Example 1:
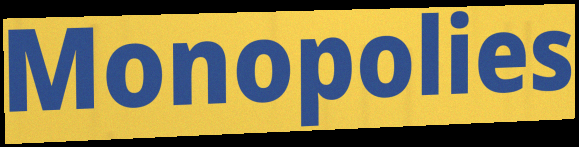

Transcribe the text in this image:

Monopolies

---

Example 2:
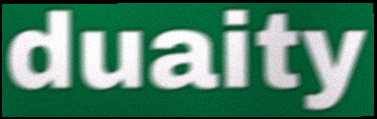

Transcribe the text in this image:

duaity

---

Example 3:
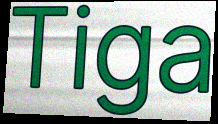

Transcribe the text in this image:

Tiga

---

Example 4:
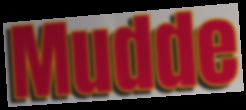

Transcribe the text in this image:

Mudde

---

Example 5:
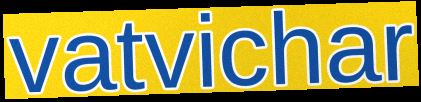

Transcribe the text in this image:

vatvichar